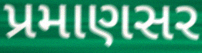
પ્રમાણસર